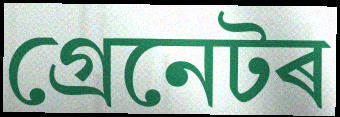
গ্ৰেনেটৰ